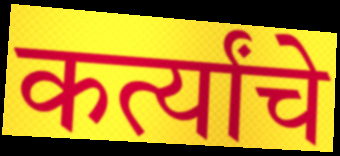
कर्त्यांचे